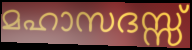
മഹാസദസ്സ്